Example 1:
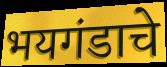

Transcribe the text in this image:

भयगंडाचे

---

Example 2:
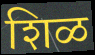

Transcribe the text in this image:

शिळ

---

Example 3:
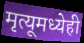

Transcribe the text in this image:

मृत्यूमध्येही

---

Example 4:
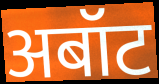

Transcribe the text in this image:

अबॉट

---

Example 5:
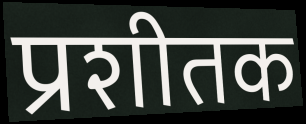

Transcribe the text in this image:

प्रशीतक